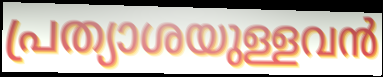
പ്രത്യാശയുള്ളവൻ